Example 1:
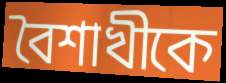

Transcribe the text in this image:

বৈশাখীকে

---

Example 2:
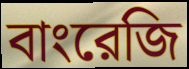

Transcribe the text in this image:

বাংরেজি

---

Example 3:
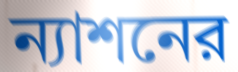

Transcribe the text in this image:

ন্যাশনের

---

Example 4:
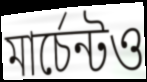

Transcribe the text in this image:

মার্চেন্টও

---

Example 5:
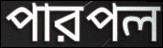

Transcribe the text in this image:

পারপল